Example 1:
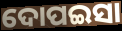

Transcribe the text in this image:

ଦୋପଇସା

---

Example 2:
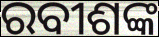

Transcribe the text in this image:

ରବୀଶଙ୍କ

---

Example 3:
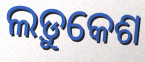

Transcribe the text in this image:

ଲଡ଼ୁକେଶ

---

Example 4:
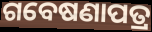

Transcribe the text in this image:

ଗବେଷଣାପତ୍ର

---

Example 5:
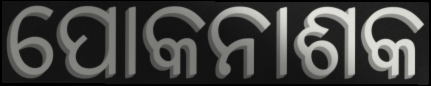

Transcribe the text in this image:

ପୋକନାଶକ